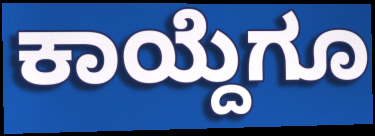
ಕಾಯ್ದೆಗೂ